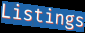
Listings